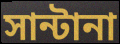
সান্টানা